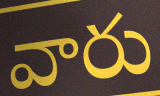
వారు